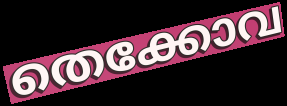
തെക്കോവ